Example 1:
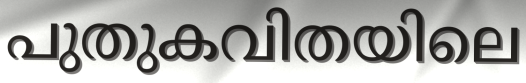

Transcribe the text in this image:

പുതുകവിതയിലെ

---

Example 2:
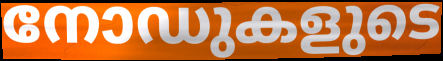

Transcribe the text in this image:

നോഡുകളുടെ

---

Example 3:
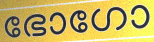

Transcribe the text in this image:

ഭോഗോ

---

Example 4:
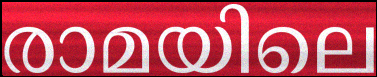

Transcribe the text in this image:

രാമയിലെ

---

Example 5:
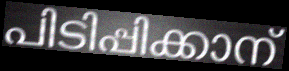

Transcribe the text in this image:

പിടിപ്പിക്കാന്